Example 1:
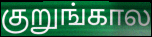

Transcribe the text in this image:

குறுங்கால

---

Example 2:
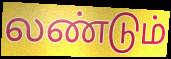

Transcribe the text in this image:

லண்டும்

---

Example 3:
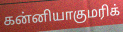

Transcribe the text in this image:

கன்னியாகுமரிக்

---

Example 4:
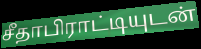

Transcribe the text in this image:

சீதாபிராட்டியுடன்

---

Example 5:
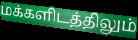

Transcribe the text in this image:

மக்களிடத்திலும்